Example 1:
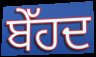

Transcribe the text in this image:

ਬੇੱਹਦ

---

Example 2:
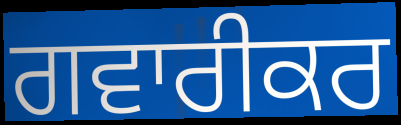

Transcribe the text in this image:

ਗਵਾਰੀਕਰ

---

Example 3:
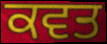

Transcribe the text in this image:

ਕਵਤ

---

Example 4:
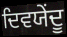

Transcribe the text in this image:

ਦਿਵਯੇਂਦੂ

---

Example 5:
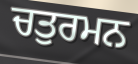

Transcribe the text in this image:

ਚਤੁਰਮਨ